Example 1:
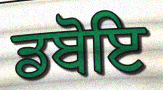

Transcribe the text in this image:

ਡਬੋਇ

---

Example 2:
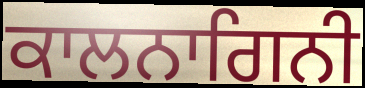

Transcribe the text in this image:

ਕਾਲਨਾਗਿਨੀ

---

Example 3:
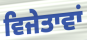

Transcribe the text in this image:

ਵਿਜੇਤਾਵਾਂ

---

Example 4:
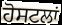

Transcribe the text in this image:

ਹੋਸਟਲਾਂ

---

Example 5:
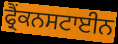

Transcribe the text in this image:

ਫ੍ਰੈਂਕਨਸਟਾਈਨ